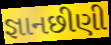
જ્ઞાનછીણી